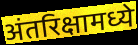
अंतरिक्षामध्ये